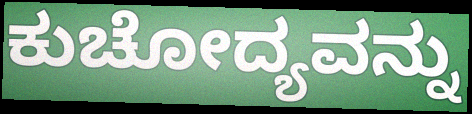
ಕುಚೋದ್ಯವನ್ನು